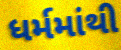
ધર્મમાંથી